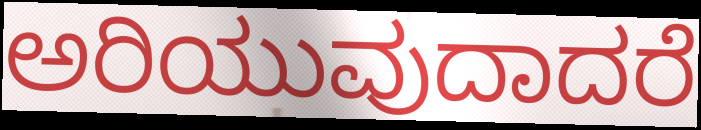
ಅರಿಯುವುದಾದರೆ